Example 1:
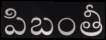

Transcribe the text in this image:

పిబంతీ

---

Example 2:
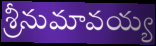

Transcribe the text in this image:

శ్రీనుమావయ్య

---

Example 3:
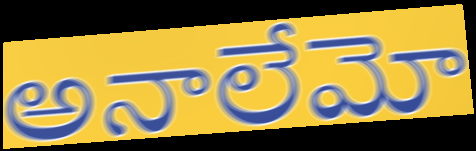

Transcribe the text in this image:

అనాలేమో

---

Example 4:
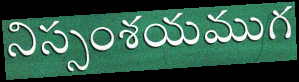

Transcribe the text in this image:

నిస్సంశయముగ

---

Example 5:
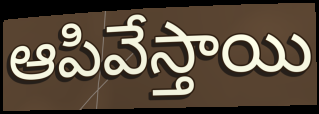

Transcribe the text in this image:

ఆపివేస్తాయి